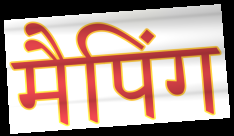
मैपिंग